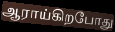
ஆராய்கிறபோது